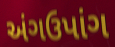
અંગઉપાંગ